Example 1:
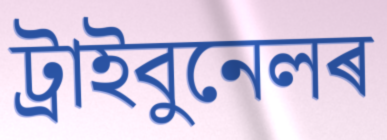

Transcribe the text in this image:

ট্ৰাইবুনেলৰ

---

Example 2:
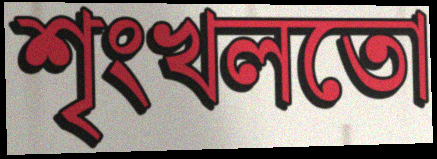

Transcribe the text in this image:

শৃংখলতো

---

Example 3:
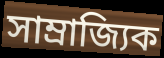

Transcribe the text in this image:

সাম্ৰাজ্যিক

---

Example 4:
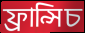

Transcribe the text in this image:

ফ্ৰান্সিচ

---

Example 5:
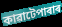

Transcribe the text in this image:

কাৱাটেপাৰাৰ